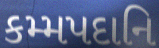
કમ્મપદાનિ